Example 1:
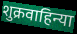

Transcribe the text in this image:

शुक्रवाहिन्या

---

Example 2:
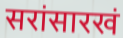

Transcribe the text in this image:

सरांसारखं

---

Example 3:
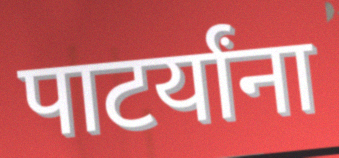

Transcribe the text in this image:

पाटर्यांना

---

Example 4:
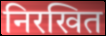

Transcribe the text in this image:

निरखित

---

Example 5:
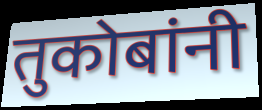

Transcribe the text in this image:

तुकोबांनी